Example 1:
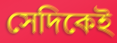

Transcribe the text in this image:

সেদিকেই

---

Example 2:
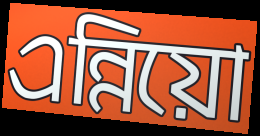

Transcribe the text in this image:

এন্নিয়ো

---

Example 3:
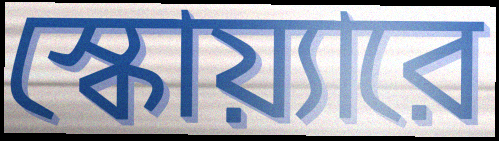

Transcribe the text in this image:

স্কোয়্যারে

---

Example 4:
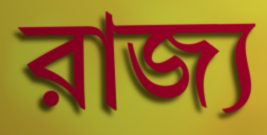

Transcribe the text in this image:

রাজ্য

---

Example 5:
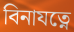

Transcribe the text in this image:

বিনাযত্নে